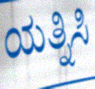
ಯತ್ನಿಸಿ